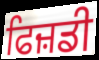
ਫਿਜ਼ਡੀ